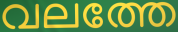
വലത്തേ